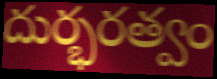
దుర్భరత్వం